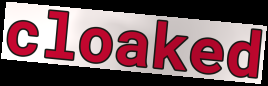
cloaked